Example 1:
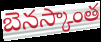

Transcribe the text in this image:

బెనస్కాంత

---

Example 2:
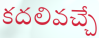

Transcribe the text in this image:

కదలివచ్చే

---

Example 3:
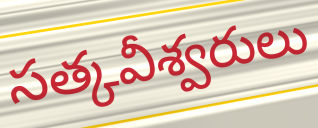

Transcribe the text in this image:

సత్కవీశ్వరులు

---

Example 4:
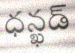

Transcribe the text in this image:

ధన్ఖడ్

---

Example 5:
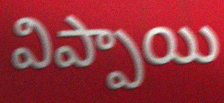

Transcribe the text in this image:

విప్పాయి